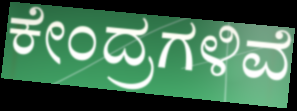
ಕೇಂದ್ರಗಳಿವೆ